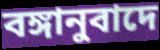
বঙ্গানুবাদে